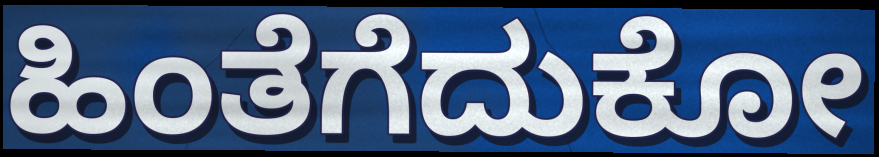
ಹಿಂತೆಗೆದುಕೋ